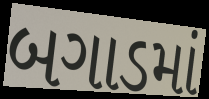
બગાડમાં